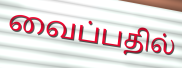
வைப்பதில்